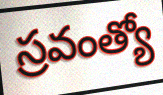
స్రవంత్యో